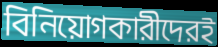
বিনিয়োগকারীদেরই